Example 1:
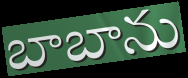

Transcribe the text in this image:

బాబాను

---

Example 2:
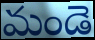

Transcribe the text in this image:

మండె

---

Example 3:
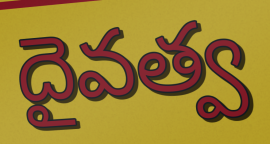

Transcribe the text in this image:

దైవత్వ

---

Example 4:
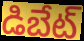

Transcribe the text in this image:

డిబేట్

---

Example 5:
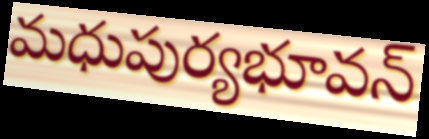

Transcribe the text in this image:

మధుపుర్యభూవన్